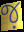
જ઼